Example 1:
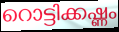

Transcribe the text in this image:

റൊട്ടിക്കഷ്ണം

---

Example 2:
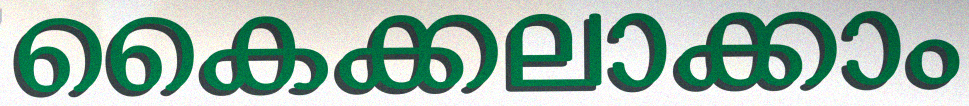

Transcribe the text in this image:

കൈക്കലാക്കാം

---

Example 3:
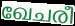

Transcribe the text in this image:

ഖേചരീ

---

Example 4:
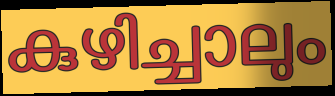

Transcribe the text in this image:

കുഴിച്ചാലും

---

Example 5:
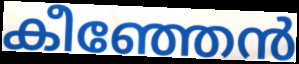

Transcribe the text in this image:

കീഞ്ഞേൻ